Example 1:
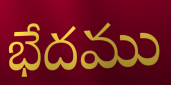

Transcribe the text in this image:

భేదము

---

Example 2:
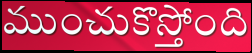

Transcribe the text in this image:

ముంచుకొస్తోంది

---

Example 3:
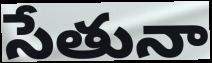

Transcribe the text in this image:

సేతునా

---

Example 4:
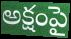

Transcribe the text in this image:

అక్షంపై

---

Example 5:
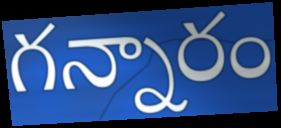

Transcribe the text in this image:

గన్నారం